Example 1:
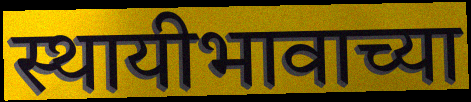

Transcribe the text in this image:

स्थायीभावाच्या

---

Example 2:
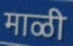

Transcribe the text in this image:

माळी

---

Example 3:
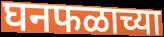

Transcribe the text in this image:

घनफळाच्या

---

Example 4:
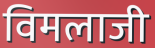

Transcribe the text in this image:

विमलाजी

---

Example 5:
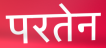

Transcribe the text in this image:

परतेन